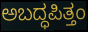
ಅಬದ್ಧಪಿತ್ತಂ